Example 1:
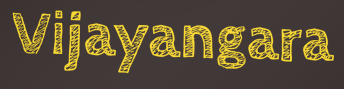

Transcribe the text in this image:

Vijayangara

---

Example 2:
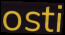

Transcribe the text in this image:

osti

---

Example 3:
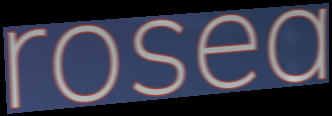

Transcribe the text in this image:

rosea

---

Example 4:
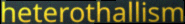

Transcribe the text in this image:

heterothallism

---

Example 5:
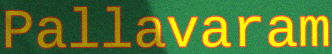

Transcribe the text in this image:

Pallavaram